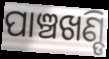
ପାଞ୍ଚଖଣ୍ଡି